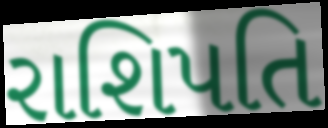
રાશિપતિ